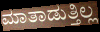
ಮಾತಾಡುತ್ತಿಲ್ಲ